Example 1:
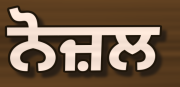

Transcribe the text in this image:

ਨੋਜ਼ਲ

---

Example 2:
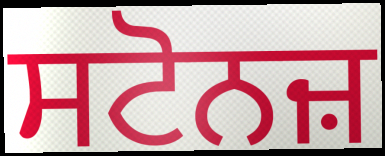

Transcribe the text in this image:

ਸਟੋਨਜ਼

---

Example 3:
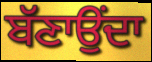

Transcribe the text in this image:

ਬੱਣਾਉਂਦਾ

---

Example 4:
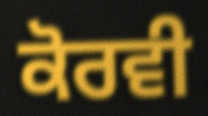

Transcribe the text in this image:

ਕੋਰਵੀ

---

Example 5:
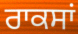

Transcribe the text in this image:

ਰਾਕਸਾਂ